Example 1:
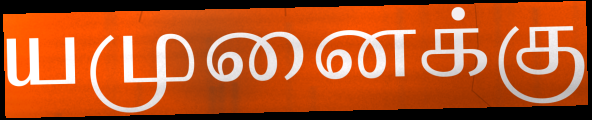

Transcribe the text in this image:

யமுனைக்கு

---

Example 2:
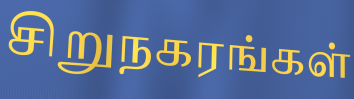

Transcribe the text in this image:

சிறுநகரங்கள்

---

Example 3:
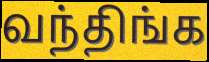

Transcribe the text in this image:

வந்திங்க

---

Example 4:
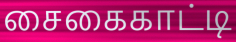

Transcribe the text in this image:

சைகைகாட்டி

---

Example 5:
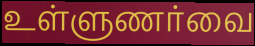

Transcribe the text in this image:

உள்ளுணர்வை